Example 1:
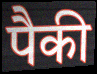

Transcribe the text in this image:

पैकी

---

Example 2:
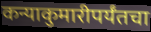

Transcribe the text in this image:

कन्याकुमारीपर्यंतचा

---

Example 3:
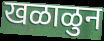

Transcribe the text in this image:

खळाळुन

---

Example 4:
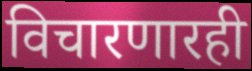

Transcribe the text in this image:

विचारणारही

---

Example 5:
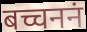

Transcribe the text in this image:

बच्चननं